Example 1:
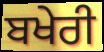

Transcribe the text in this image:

ਬਖੇਰੀ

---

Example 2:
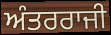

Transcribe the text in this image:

ਅੰਤਰਰਾਜੀ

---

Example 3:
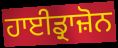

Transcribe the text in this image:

ਹਾਈਡ੍ਰਾਜ਼ੋਨ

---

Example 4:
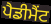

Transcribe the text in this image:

ਪੈਡੀਮੈਂਟ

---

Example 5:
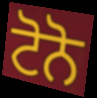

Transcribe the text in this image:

ਟੋਨੋ